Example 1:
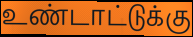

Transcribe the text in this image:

உண்டாட்டுக்கு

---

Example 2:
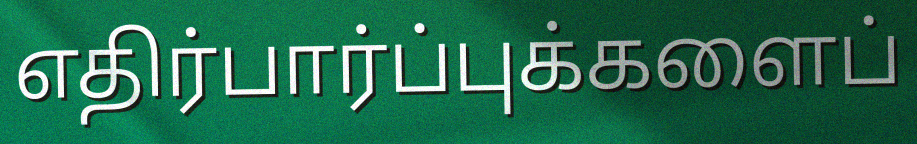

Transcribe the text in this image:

எதிர்பார்ப்புக்களைப்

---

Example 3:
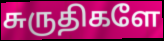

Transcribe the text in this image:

சுருதிகளே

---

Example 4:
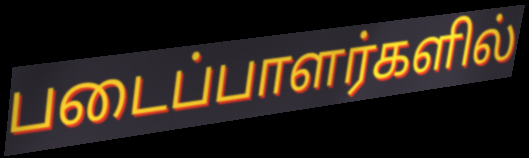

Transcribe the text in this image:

படைப்பாளர்களில்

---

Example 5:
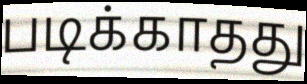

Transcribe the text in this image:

படிக்காதது